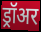
ड्रॉअर